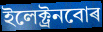
ইলেক্ট্ৰনবোৰ